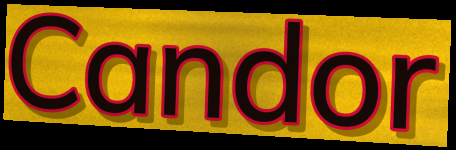
Candor